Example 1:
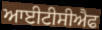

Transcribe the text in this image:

ਆਈਟੀਸੀਐਫ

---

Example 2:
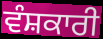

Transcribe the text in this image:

ਵੰਸ਼ਕਾਰੀ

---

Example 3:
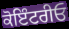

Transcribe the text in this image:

ਕੋਇੰਟਰੀਓ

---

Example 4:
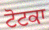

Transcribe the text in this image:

ਟੋਟਕਾ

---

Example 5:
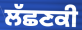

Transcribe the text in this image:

ਲੱਛਣਕੀ